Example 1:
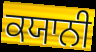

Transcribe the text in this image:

ਕਯਾਨੀ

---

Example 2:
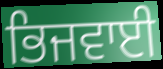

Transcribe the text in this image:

ਭਿਜਵਾਈ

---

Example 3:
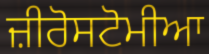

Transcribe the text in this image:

ਜ਼ੀਰੋਸਟੋਮੀਆ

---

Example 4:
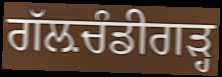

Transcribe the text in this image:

ਗੱਲ਼ਚੰਡੀਗੜ੍ਹ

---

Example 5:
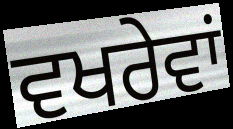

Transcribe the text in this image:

ਵਖਰੇਵਾਂ